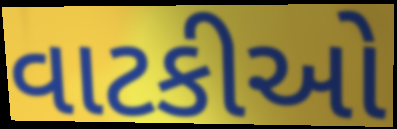
વાટકીઓ